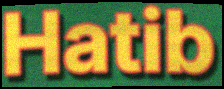
Hatib